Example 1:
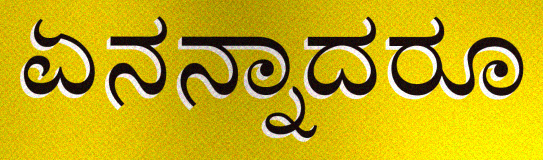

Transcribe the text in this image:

ಏನನ್ನಾದರೂ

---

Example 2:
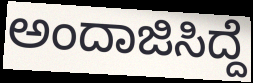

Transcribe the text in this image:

ಅಂದಾಜಿಸಿದ್ದೆ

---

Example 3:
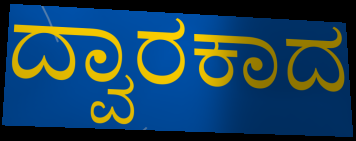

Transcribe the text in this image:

ದ್ವಾರಕಾದ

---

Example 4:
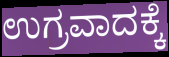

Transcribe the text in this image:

ಉಗ್ರವಾದಕ್ಕೆ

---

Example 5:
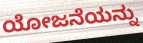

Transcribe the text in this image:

ಯೋಜನೆಯನ್ನು